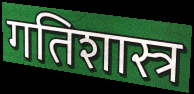
गतिशास्त्र